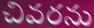
చివరను